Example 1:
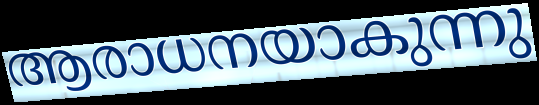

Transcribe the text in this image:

ആരാധനയാകുന്നു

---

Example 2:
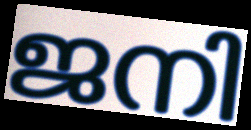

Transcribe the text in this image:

ജനി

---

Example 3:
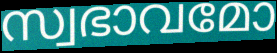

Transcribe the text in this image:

സ്വഭാവമോ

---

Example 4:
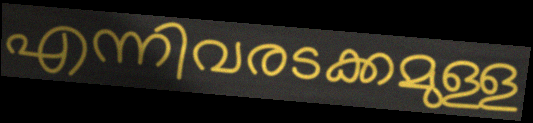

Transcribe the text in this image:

എന്നിവരടക്കമുള്ള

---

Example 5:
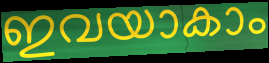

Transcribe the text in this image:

ഇവയാകാം